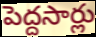
పెద్దసార్లు